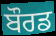
ਬੌਰਡ